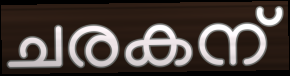
ചരകന്